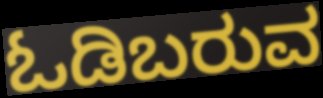
ಓಡಿಬರುವ